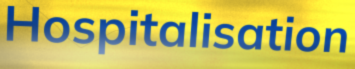
Hospitalisation